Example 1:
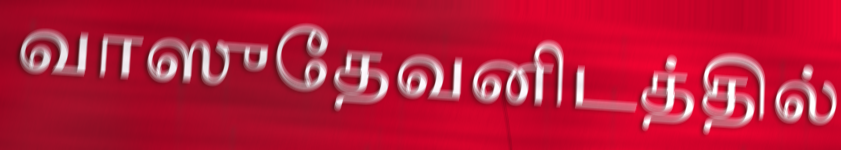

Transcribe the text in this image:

வாஸுதேவனிடத்தில்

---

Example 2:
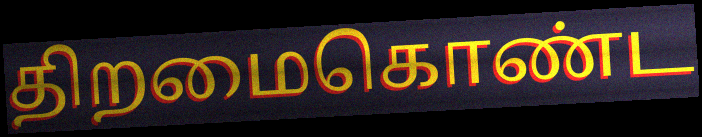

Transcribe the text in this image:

திறமைகொண்ட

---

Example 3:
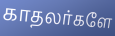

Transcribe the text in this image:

காதலர்களே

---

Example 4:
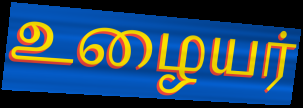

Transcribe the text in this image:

உழையர்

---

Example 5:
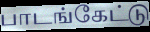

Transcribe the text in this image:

பாடங்கேட்டு